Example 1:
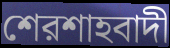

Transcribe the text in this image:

শেরশাহবাদী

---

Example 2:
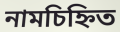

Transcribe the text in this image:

নামচিহ্নিত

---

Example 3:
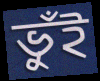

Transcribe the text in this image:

ভুঁই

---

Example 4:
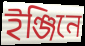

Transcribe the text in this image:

ইঞ্জিনে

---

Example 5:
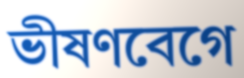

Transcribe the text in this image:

ভীষণবেগে